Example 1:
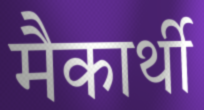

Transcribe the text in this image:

मैकार्थी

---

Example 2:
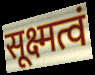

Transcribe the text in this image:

सूक्ष्मत्वं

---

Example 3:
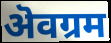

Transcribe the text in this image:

ऄवग्रम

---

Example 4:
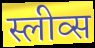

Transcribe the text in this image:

स्लीव्स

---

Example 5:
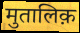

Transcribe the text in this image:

मुतालिक़